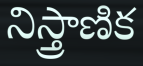
నిస్త్రాణిక